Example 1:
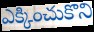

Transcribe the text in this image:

ఎక్కించుకొని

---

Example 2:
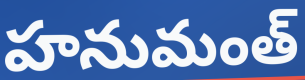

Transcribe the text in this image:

హనుమంత్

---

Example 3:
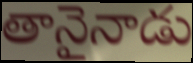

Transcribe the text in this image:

తానైనాడు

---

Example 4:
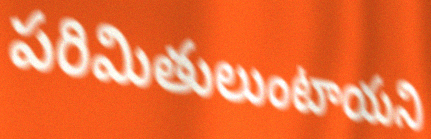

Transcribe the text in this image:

పరిమితులుంటాయని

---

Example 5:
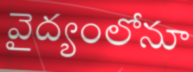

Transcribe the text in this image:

వైద్యంలోనూ